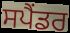
ਸਪੈਂਡਰ